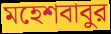
মহেশবাবুর